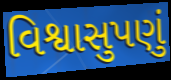
વિશ્વાસુપણું